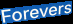
Forevers